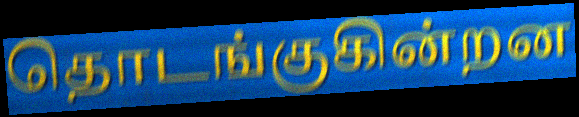
தொடங்குகின்றன